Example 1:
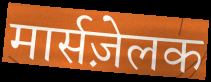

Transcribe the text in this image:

मार्सज़ेलक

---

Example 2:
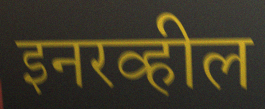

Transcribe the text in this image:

इनरव्हील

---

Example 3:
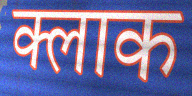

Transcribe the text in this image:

क्लाक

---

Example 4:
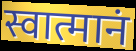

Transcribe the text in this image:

स्वात्मानं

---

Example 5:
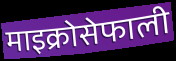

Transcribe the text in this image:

माइक्रोसेफाली